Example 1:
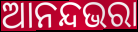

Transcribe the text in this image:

ଆନନ୍ଦଭରା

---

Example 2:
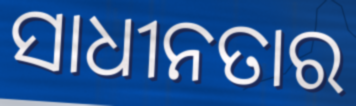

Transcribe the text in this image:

ସାଧୀନତାର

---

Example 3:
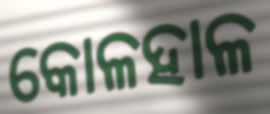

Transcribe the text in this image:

କୋଳହାଳ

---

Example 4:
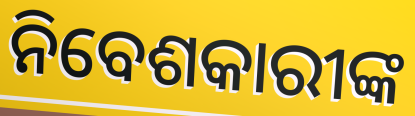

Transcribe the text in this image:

ନିବେଶକାରୀଙ୍କ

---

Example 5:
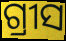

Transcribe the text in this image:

ଗ୍ରୀସ